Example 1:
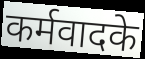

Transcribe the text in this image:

कर्मवादके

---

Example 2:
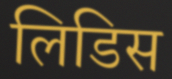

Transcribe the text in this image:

लिडिस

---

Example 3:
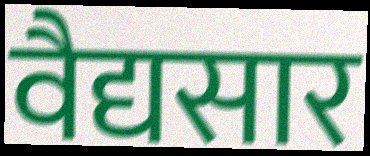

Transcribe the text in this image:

वैद्यसार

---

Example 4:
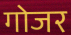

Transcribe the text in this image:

गोजर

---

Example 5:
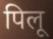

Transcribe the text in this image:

पिलू